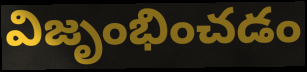
విజృంభించడం